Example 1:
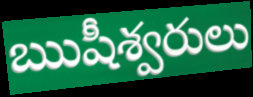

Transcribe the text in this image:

ఋషీశ్వరులు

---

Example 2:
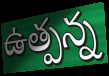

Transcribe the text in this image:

ఉత్పన్న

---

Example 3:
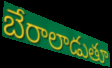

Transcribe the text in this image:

బేరాలాడుతూ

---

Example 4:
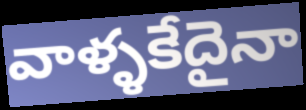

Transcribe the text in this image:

వాళ్ళకేదైనా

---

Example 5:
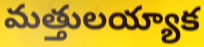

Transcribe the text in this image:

మత్తులయ్యాక